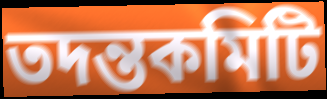
তদন্তকমিটি